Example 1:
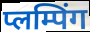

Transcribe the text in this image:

प्लम्पिंग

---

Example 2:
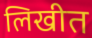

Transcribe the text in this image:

लिखीत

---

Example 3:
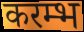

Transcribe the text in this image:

करम्भ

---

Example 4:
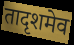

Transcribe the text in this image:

तादृशमेव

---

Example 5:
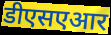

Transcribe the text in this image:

डीएसएआर